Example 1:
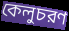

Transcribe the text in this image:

কেলুচরণ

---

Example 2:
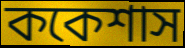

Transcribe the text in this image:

ককেশাস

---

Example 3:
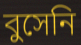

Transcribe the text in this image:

বুসেনি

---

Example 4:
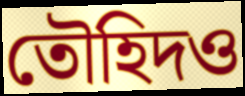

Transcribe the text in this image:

তৌহিদও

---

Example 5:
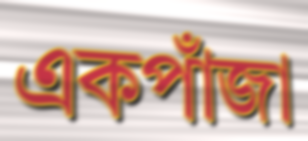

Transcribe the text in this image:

একপাঁজা